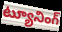
ట్యూనింగ్